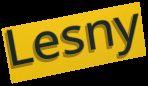
Lesny